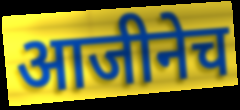
आजीनेच